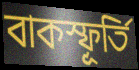
বাকস্ফূর্তি